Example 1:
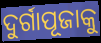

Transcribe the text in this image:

ଦୁର୍ଗାପୂଜାକୁ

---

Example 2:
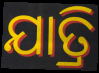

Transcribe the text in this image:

ଯାତ୍ରି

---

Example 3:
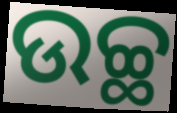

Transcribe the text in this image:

ଉଚ୍ଛ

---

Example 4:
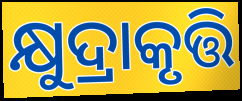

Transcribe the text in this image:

କ୍ଷୁଦ୍ରାକୃତ୍ତି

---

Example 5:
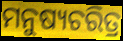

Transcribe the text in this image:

ମନୁଷ୍ୟଚରିତ୍ର